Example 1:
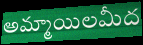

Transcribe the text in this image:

అమ్మాయిలమీద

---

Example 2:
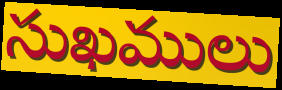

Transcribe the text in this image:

సుఖములు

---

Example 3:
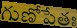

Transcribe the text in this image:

గుణోపేతః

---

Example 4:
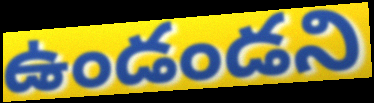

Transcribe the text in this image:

ఉండండని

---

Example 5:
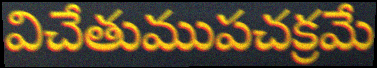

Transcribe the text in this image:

విచేతుముపచక్రమే